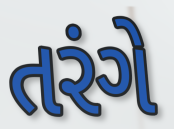
તરંગે